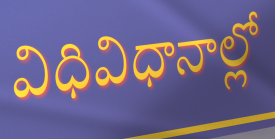
విధివిధానాల్లో